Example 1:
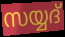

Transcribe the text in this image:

സയ്യദ്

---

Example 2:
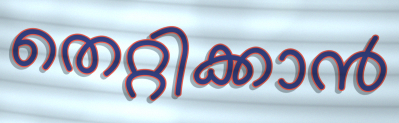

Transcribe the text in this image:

തെറ്റിക്കാൻ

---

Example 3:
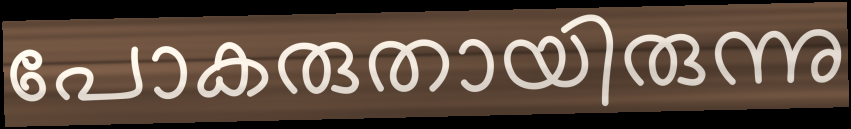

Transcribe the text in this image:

പോകരുതായിരുന്നു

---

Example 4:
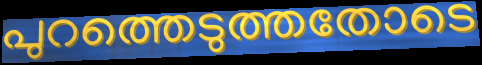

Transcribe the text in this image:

പുറത്തെടുത്തതോടെ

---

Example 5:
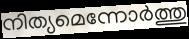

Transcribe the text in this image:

നിത്യമെന്നോർത്തു